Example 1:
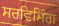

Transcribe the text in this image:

ਸਰਵਿਸਿੰਗ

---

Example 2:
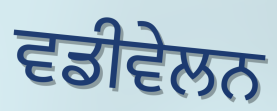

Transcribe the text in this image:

ਵਡੀਵੇਲਨ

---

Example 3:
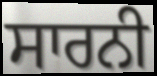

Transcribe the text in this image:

ਸਾਰਨੀ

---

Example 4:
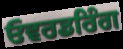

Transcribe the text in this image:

ਓਵਰਡਰਿੰਗ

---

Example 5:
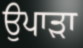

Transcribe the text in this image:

ਉਪਾੜਾ